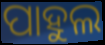
ପାହୁଲ